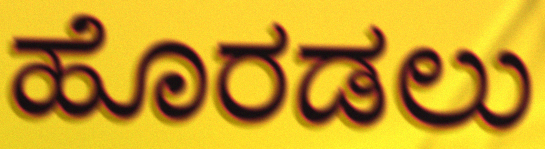
ಹೊರಡಲು